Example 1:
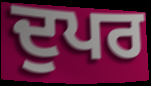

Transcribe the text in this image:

ਦੁਪਰ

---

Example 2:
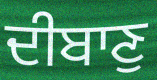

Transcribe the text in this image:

ਦੀਬਾਣੁ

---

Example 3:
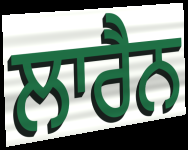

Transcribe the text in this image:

ਲਾਰੈਨ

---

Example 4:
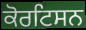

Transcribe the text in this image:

ਕੋਰਟਿਸਨ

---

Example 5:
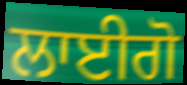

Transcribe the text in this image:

ਲਾਈਗੋ